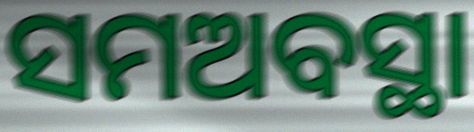
ସମଅବସ୍ଥା